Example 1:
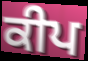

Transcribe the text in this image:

ਕੀਪ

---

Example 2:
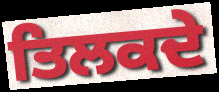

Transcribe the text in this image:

ਤਿਲਕਦੇ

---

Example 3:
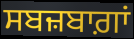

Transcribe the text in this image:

ਸਬਜ਼ਬਾਗ਼ਾਂ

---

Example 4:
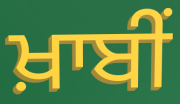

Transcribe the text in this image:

ਖ਼ਾਬੀਂ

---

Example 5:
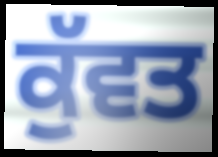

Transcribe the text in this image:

ਕੁੱਵਤ